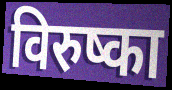
विरुष्का